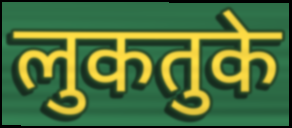
लुकतुके